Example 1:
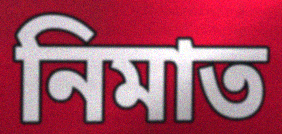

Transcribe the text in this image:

নিমাত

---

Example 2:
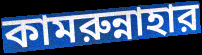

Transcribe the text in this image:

কামরুন্নাহার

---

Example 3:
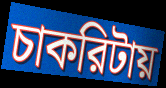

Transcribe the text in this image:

চাকরিটায়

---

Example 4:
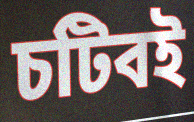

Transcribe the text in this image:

চটিবই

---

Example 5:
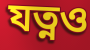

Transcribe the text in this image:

যত্নও